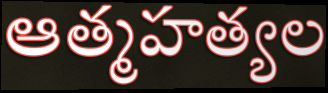
ఆత్మహత్యల